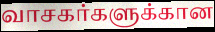
வாசகர்களுக்கான